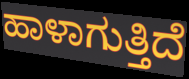
ಹಾಳಾಗುತ್ತಿದೆ